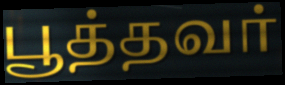
பூத்தவர்